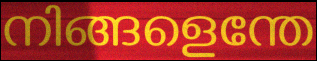
നിങ്ങളെന്തേ